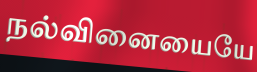
நல்வினையையே